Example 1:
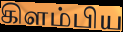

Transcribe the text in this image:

கிளம்பிய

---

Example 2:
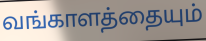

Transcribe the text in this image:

வங்காளத்தையும்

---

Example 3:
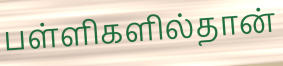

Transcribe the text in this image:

பள்ளிகளில்தான்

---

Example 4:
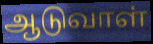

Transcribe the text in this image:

ஆடுவாள்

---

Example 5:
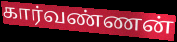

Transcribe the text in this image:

கார்வண்ணன்